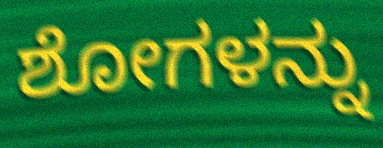
ಶೋಗಳನ್ನು